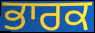
ਭਾਰਕ